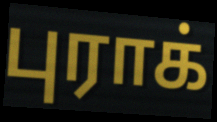
புராக்